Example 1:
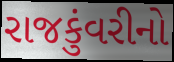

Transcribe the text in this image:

રાજકુંવરીનો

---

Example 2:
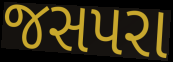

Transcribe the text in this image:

જસપરા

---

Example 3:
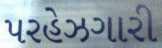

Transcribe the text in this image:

પરહેઝગારી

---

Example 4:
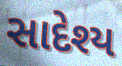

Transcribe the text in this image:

સાદેશ્ય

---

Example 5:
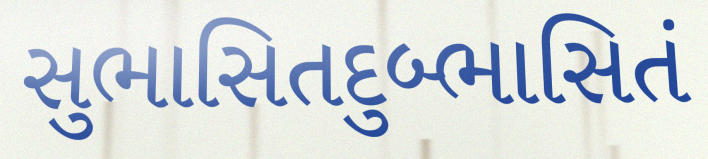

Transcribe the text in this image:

સુભાસિતદુબ્ભાસિતં